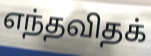
எந்தவிதக்